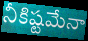
నీకిష్టమేనా